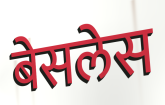
बेसलेस